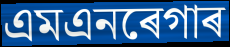
এমএনৰেগাৰ